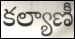
కల్యాణీ